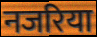
नजरिया